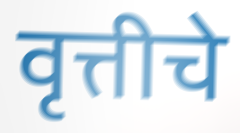
वृत्तीचे